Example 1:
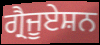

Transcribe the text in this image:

ਗ੍ਰੈਜੂਏਸ਼ਨ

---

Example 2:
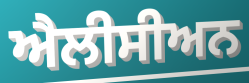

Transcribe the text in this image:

ਐਲੀਸੀਅਨ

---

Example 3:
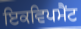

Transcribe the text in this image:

ਇਕਵਿਪਮੈਂਟ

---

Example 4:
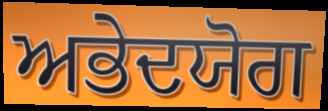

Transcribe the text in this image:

ਅਭੇਦਯੋਗ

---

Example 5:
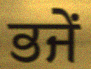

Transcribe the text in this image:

ਭਜੇਂ